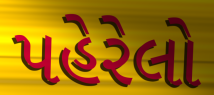
પહેરેલો